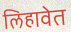
लिहावेत